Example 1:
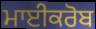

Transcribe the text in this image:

ਮਾਈਕਰੋਬ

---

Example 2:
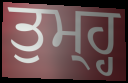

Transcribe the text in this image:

ਤੁਮ੍ਹ੍ਹ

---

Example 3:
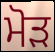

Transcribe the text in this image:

ਮੋਡ਼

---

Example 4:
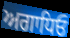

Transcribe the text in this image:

ਅਗਾਧਿਓ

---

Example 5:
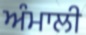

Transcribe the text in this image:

ਅੰਮਾਲੀ